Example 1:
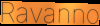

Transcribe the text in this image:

Ravanno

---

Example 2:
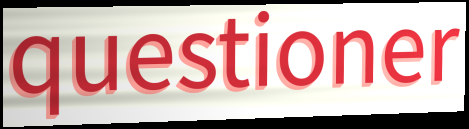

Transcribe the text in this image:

questioner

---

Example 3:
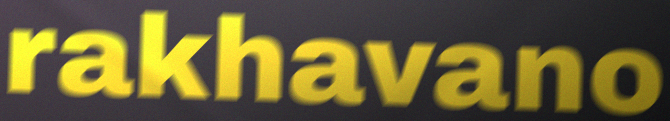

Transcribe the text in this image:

rakhavano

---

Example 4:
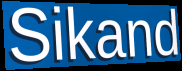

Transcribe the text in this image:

Sikand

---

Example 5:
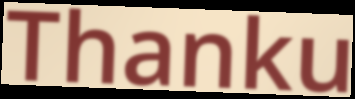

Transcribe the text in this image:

Thanku